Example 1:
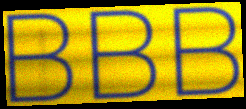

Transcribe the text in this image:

BBB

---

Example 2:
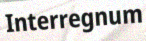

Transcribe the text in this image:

Interregnum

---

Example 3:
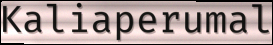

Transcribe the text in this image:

Kaliaperumal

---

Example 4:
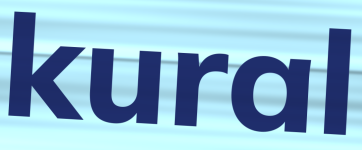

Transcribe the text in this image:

kural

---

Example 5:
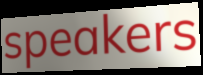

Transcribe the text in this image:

speakers